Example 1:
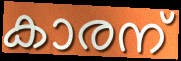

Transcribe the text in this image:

കാരന്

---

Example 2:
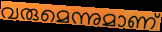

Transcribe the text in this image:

വരുമെന്നുമാണ്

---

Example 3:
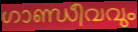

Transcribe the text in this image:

ഗാണ്ഡീവവും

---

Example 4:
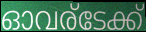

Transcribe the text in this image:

ഓവര്ടേക്ക്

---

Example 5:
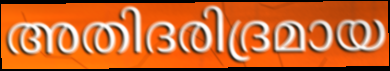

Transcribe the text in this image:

അതിദരിദ്രമായ